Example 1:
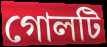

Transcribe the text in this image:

গোলটি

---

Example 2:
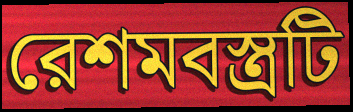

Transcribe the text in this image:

রেশমবস্ত্রটি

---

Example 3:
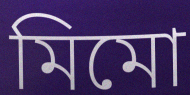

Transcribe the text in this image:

মিমো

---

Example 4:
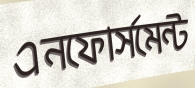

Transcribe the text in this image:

এনফোর্সমেন্ট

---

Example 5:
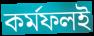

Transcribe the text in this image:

কর্মফলই